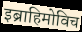
इब्राहिमोविच